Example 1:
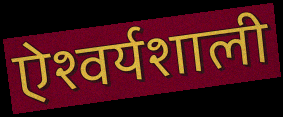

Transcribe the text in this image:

ऐश्वर्यशाली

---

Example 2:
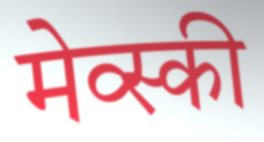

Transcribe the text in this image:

मेव्स्की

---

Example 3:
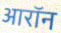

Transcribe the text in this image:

आरॉन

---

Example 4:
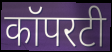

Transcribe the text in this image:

कॉपरटी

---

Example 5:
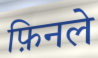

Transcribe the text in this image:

फ़िनले